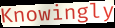
Knowingly